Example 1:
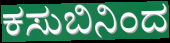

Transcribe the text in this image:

ಕಸುಬಿನಿಂದ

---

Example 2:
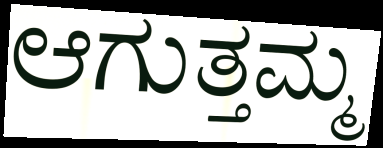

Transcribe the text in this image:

ಆಗುತ್ತಮ್ಮ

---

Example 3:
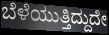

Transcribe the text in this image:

ಬೆಳೆಯುತ್ತಿದ್ದುದೇ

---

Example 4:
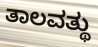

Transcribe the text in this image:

ತಾಲವತ್ಥು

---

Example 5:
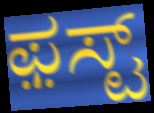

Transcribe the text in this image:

ಫ಼ಸ್ಟ್